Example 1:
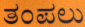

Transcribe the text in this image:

ತಂಪಲು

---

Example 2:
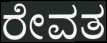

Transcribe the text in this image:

ರೇವತ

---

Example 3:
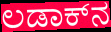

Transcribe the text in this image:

ಲಡಾಕ್‌ನ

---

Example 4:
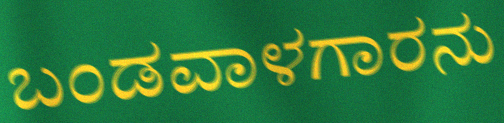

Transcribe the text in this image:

ಬಂಡವಾಳಗಾರನು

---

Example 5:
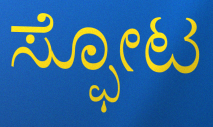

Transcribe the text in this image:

ಸ್ಫೋಟ